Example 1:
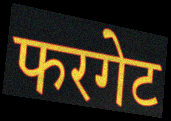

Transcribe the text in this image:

फरगेट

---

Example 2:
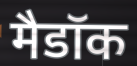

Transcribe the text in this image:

मैडॉक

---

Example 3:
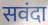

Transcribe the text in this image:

सवंदा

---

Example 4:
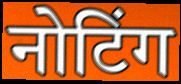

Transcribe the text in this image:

नोटिंग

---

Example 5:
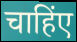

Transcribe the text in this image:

चाहिंए